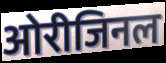
ओरीजिनल